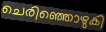
ചെരിഞ്ഞൊഴുകി